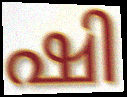
ഷി